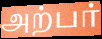
அற்பர்